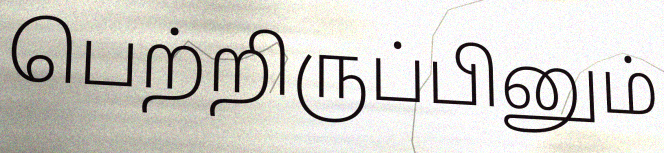
பெற்றிருப்பினும்